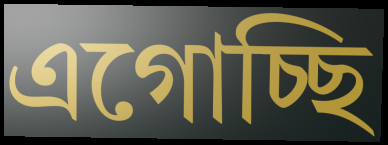
এগোচ্ছি